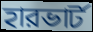
হারভার্ট